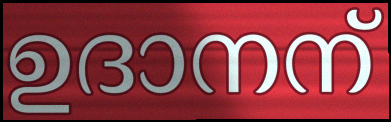
ഉദാനന്